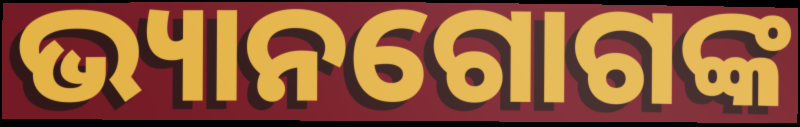
ଭ୍ୟାନଗୋଗଙ୍କ